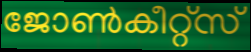
ജോൺകീറ്റ്സ്